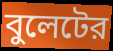
বুলেটের